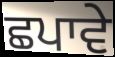
ਛਪਾਵੇ